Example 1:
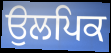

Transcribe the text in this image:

ਉਲਪਿਕ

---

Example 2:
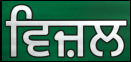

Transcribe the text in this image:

ਵਿਜ਼ਲ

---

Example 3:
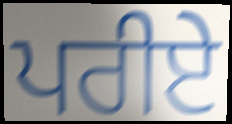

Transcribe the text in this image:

ਪਰੀਏ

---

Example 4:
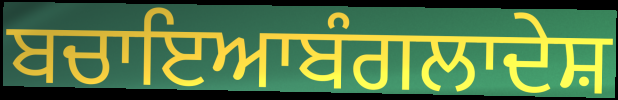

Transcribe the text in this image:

ਬਚਾਇਆਬੰਗਲਾਦੇਸ਼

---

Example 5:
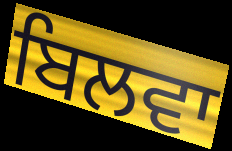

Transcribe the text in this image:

ਬਿਲਵਾ